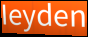
Ieyden